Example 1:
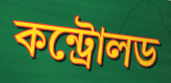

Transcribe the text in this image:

কন্ট্রোলড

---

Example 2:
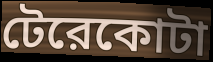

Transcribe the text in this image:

টেরেকোটা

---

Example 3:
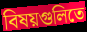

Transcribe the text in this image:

বিষয়গুলিতে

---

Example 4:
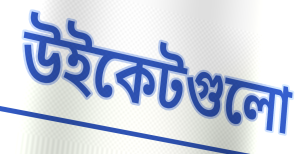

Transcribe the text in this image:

উইকেটগুলো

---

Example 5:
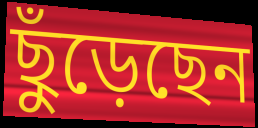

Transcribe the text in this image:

ছুঁড়েছেন